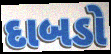
દાબડો